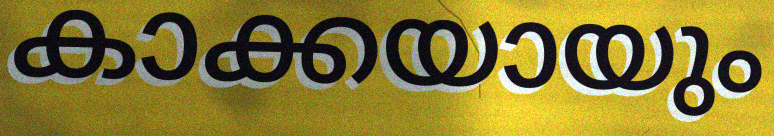
കാക്കയായും